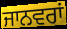
ਜਾਨਵਰਾਂ